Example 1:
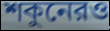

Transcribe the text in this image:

শকুনেরও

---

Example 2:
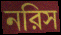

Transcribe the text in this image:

নরিস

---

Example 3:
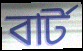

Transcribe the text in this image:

বার্ট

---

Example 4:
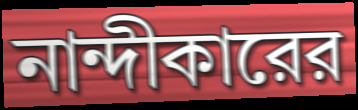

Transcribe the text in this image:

নান্দীকারের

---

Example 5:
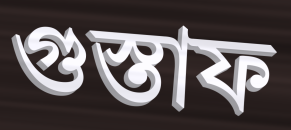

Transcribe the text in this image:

গুস্তাফ